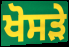
ਖੋਸੜੇ